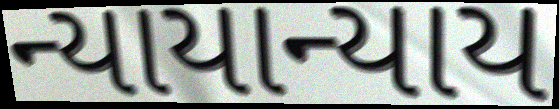
ન્યાયાન્યાય